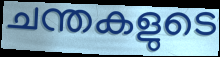
ചന്തകളുടെ